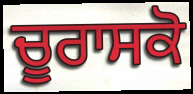
ਚੂਰਾਸਕੋ